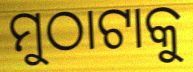
ମୁଠାଟାକୁ